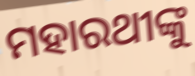
ମହାରଥୀଙ୍କୁ